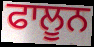
ਫਾਲੂਨ